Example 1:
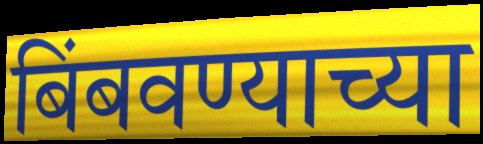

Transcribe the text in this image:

बिंबवण्याच्या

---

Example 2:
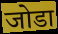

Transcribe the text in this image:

जोडा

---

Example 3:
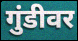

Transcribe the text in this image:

गुंडीवर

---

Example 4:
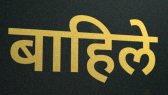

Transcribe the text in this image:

बाहिले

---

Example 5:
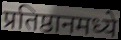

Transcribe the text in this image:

प्रतिष्ठानमध्ये